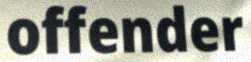
offender